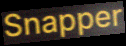
Snapper